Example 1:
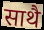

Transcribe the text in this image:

साथै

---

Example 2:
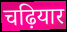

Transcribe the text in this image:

चढ़ियार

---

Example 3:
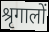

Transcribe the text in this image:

श्रृगालों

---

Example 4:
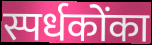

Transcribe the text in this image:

स्पर्धकोंका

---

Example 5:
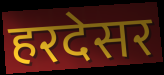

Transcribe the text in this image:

हरदेसर